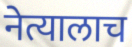
नेत्यालाच